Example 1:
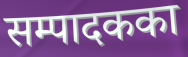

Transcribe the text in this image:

सम्पादकका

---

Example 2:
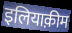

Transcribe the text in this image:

इलियाक़ीम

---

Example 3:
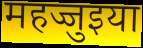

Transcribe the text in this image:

महज्जुइया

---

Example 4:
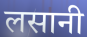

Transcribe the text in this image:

लसानी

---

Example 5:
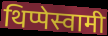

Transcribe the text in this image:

थिप्पेस्वामी